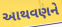
આથવણને